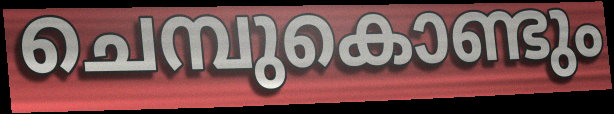
ചെമ്പുകൊണ്ടും